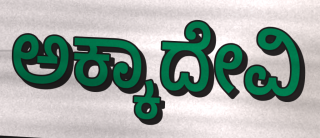
ಅಕ್ಕಾದೇವಿ